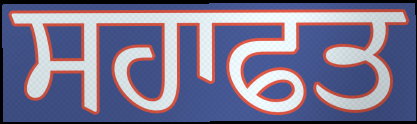
ਸਹਾਫਤ